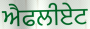
ਐਫਲੀਏਟ